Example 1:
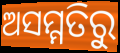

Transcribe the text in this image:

ଅସମ୍ମତିରୁ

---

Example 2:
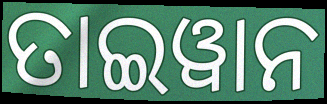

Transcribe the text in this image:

ତାଇୱାନ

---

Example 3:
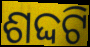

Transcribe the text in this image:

ଶଦ୍ଦଟି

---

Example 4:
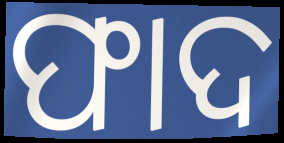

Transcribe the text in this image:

ଫାଦ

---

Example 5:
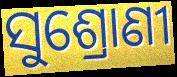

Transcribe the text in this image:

ସୁଶ୍ରୋଣୀ